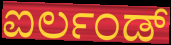
ಐರ್ಲಂಡ್